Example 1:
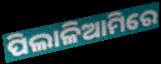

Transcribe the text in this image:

ପିଲାଳିଆମିରେ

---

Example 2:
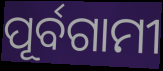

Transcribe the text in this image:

ପୂର୍ବଗାମୀ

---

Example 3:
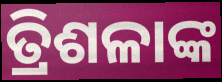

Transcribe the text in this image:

ତ୍ରିଶଳାଙ୍କ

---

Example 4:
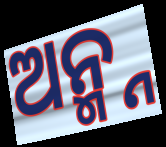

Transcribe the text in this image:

ଅନ୍ମ୍ନ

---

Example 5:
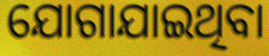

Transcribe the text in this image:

ଯୋଗାଯାଇଥିବା